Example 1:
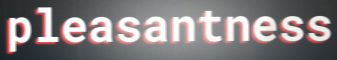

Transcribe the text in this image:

pleasantness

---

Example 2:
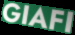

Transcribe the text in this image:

GIAFI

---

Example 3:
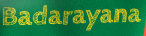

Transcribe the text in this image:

Badarayana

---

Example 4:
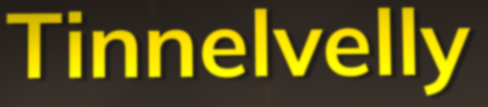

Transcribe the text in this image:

Tinnelvelly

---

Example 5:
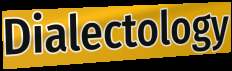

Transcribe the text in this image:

Dialectology